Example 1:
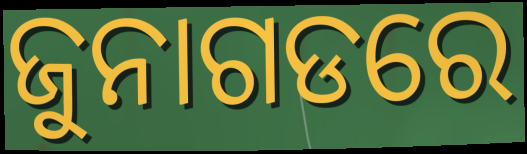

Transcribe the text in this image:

ଜୁନାଗଡରେ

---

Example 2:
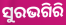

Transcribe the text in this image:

ସୁରଭଗିରି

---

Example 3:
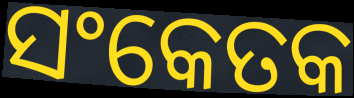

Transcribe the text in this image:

ସଂକେତକ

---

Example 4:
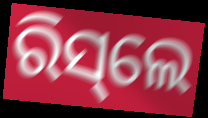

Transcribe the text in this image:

ରିସ୍‌ଲେ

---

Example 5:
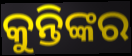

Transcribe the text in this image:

କୁନ୍ତିଙ୍କର